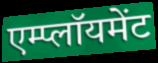
एम्प्लॉयमेंट